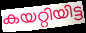
കയറ്റിയിട്ട